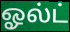
ஓல்ட்